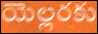
యెల్లరకు